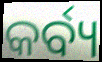
କର୍ବ୍ୟ